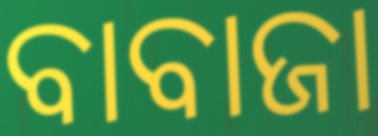
ବାବାଜା